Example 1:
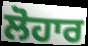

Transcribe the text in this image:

ਲੋਹਾਰ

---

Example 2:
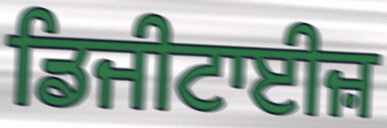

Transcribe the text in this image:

ਡਿਜੀਟਾਈਜ਼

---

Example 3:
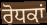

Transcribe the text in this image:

ਰੋਧਕਾਂ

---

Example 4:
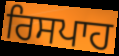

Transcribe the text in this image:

ਰਿਸਪਾਹ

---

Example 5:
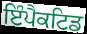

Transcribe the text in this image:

ਇੰਪੈਕਟਿਡ